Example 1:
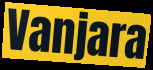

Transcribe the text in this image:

Vanjara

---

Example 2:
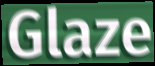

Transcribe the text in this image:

Glaze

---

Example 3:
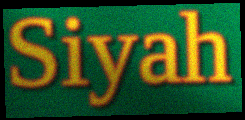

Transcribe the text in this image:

Siyah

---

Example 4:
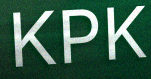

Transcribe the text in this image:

KPK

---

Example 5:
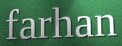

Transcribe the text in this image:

farhan